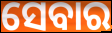
ସେବାର